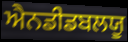
ਐਨਡੀਡਬਲਯੂ